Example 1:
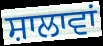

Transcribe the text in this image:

ਸ਼ਾਲਾਵਾਂ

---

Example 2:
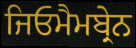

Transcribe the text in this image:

ਜਿਓਮੈਮਬ੍ਰੇਨ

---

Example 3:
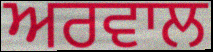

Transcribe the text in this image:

ਅਰਵਾਲ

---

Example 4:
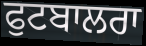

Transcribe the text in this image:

ਫੁਟਬਾਲਰਾ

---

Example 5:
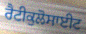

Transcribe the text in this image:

ਰੈਟੀਕੁਲੋਸਾਈਟ